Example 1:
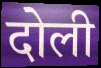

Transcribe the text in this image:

दोली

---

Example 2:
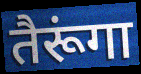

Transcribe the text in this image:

तैरूंगा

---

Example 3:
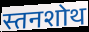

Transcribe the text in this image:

स्तनशोथ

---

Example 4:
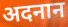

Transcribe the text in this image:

अदनान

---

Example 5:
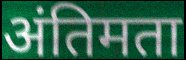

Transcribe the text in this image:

अंतिमता